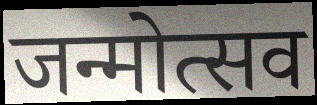
जन्मोत्सव